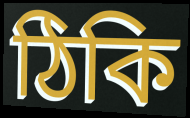
ঠিকি